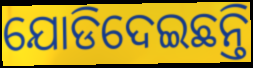
ଯୋଡିଦେଇଛନ୍ତି